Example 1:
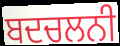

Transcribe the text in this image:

ਬਦਚਲਨੀ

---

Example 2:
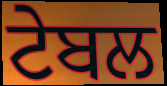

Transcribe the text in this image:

ਟੇਬਲ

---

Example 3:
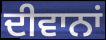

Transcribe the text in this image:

ਦੀਵਾਨਾਂ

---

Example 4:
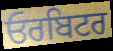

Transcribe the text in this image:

ਓਰਬਿਟਰ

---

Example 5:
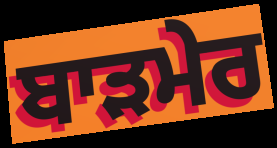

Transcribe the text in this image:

ਬਾੜਮੇਰ